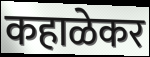
कहाळेकर